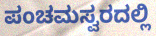
ಪಂಚಮಸ್ವರದಲ್ಲಿ